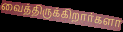
வைத்திருக்கிறார்களா